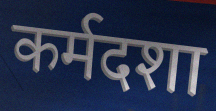
कर्मदशा